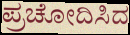
ಪ್ರಚೋದಿಸಿದ